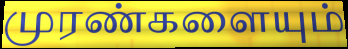
முரண்களையும்